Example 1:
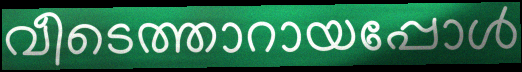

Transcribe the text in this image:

വീടെത്താറായപ്പോൾ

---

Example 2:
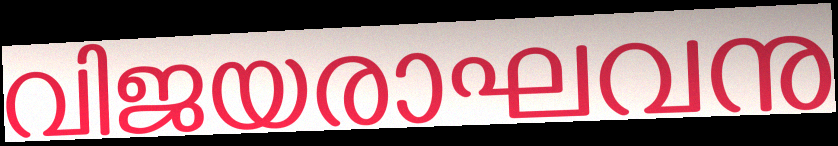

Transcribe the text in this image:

വിജയരാഘവനു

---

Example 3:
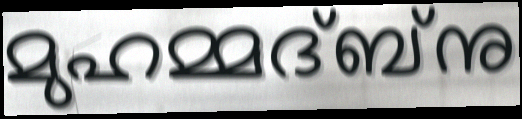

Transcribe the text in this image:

മുഹമ്മദ്ബ്നു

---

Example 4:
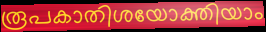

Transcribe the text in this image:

രൂപകാതിശയോക്തിയാം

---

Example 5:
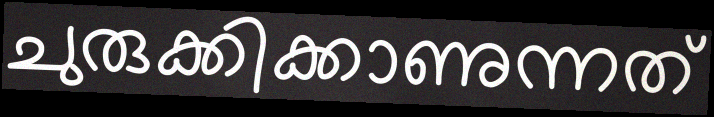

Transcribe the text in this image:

ചുരുക്കിക്കാണുന്നത്